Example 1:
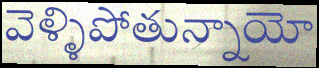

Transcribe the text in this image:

వెళ్ళిపోతున్నాయో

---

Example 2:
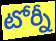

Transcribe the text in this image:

టోర్నీ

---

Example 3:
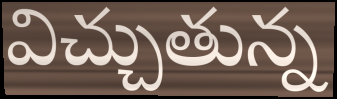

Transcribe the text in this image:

విచ్చుతున్న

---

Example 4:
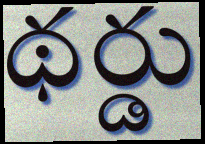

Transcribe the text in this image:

థర్డు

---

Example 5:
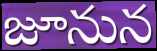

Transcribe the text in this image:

జూనున